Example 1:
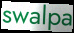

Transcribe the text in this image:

swalpa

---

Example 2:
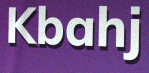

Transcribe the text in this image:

Kbahj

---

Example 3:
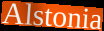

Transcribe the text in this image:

Alstonia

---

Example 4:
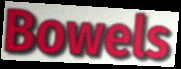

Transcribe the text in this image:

Bowels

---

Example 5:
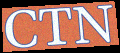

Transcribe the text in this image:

CTN